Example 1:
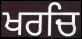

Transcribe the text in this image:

ਖਰਚਿ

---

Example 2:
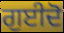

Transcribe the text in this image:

ਗੁਈਦੋ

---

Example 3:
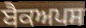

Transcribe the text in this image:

ਬੈਕਅਪਸ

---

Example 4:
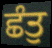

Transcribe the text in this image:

ਛੰਤੁ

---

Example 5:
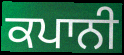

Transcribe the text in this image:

ਕਪਾਨੀ